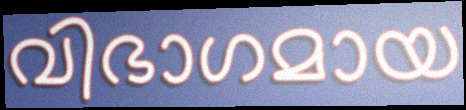
വിഭാഗമായ